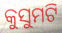
କୁସୁମଟି